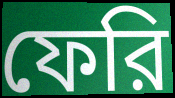
ফেরি